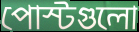
পোস্টগুলো